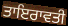
ਤਾਇਰਾਵਤੀ